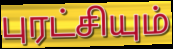
புரட்சியும்